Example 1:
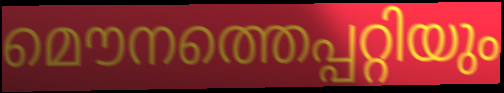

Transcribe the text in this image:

മൌനത്തെപ്പറ്റിയും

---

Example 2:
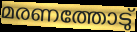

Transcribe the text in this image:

മരണത്തോടു്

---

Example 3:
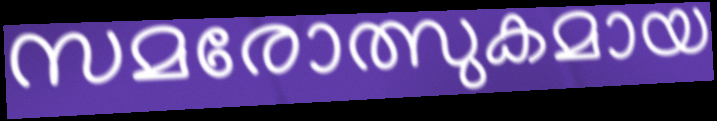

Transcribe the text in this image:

സമരോത്സുകമായ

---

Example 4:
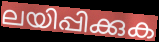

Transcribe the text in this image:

ലയിപ്പിക്കുക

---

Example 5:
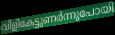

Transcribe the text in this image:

വിളികേട്ടുണർന്നുപോയി